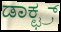
ಡಾಕ್ಟ್ರ್